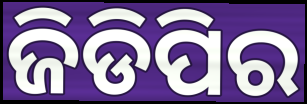
ଜିଡିପିର